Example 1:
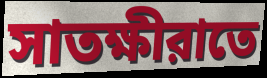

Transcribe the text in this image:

সাতক্ষীরাতে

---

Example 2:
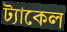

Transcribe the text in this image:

ট্যাকেল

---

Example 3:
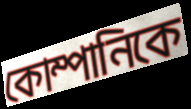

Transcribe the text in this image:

কোম্পানিকে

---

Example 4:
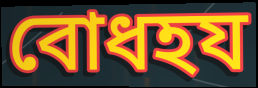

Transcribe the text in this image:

বোধহয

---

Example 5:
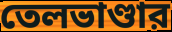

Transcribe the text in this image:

তেলভাণ্ডার